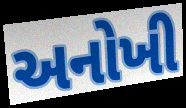
અનોખી